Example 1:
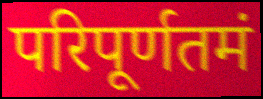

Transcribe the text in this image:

परिपूर्णतमं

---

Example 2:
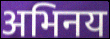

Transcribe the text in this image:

अभिनय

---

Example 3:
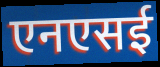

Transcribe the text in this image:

एनएसई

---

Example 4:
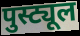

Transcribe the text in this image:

पुस्ट्यूल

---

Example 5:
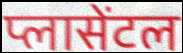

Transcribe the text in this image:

प्लासेंटल